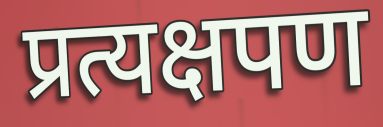
प्रत्यक्षपण